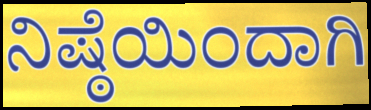
ನಿಷ್ಠೆಯಿಂದಾಗಿ